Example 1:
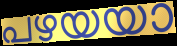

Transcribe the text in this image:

പഴയയാ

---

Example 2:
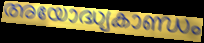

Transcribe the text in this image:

അയോദ്ധ്യകാണ്ഡം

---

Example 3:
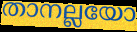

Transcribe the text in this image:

താനല്ലയോ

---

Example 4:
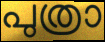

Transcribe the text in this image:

പുത്രാ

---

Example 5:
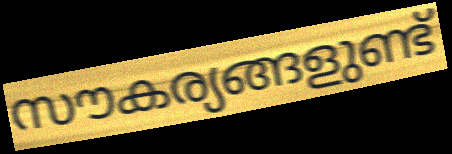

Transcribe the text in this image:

സൗകര്യങ്ങളുണ്ട്